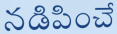
నడిపించే